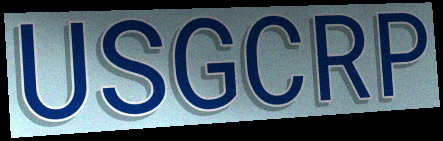
USGCRP